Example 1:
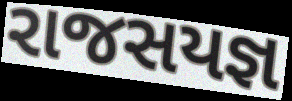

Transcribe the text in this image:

રાજસયજ્ઞ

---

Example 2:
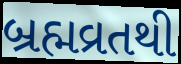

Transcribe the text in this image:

બ્રહ્મવ્રતથી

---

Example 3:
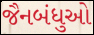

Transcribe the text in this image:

જૈનબંધુઓ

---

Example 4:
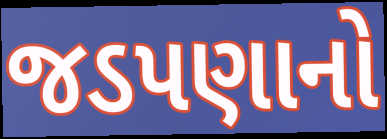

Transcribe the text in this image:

જડપણાનો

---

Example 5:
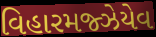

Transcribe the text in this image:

વિહારમજ્ઝેયેવ